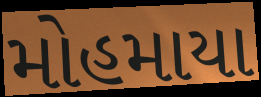
મોહમાયા